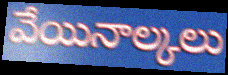
వేయినాల్కలు